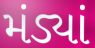
મંડ્યાં